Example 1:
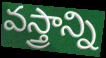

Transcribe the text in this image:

వస్త్రాన్ని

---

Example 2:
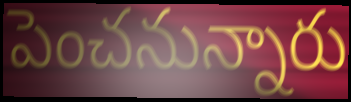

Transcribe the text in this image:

పెంచనున్నారు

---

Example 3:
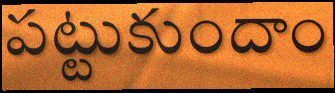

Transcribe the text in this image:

పట్టుకుందాం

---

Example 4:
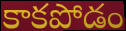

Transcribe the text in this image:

కాకపోడం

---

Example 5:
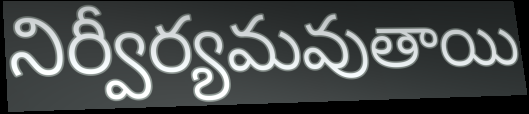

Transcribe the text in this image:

నిర్వీర్యమవుతాయి